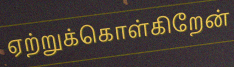
ஏற்றுக்கொள்கிறேன்